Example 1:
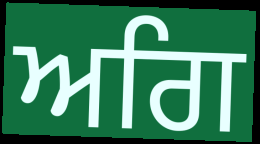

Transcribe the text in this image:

ਅਗਿ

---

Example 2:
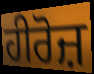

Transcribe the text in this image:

ਹੀਰੋਜ਼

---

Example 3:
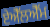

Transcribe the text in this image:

ਏਐੱਲਐੱਮ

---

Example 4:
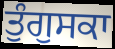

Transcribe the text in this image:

ਤੁੰਗੁਸਕਾ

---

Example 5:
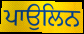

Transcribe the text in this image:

ਪਾਉਲਿਨ